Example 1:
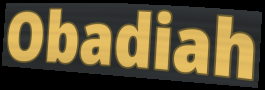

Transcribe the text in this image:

Obadiah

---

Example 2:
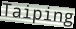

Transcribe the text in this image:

Taiping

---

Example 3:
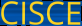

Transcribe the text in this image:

CISCE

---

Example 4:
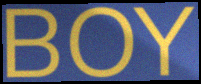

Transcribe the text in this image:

BOY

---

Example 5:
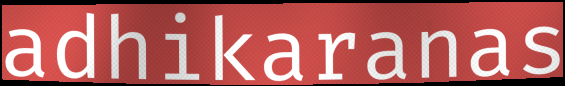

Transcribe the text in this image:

adhikaranas